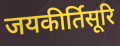
जयकीर्तिसूरि